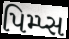
પિમ્પ્સ